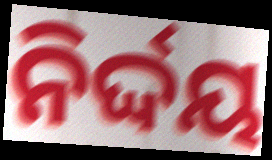
ନିର୍ଦ୍ଦୟ